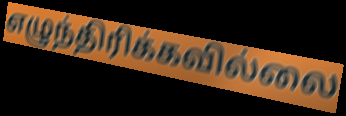
எழுந்திரிக்கவில்லை